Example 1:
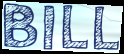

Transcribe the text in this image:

BILL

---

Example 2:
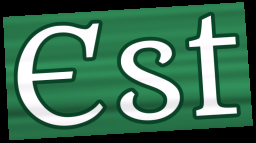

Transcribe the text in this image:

Est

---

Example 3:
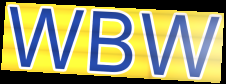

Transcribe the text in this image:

WBW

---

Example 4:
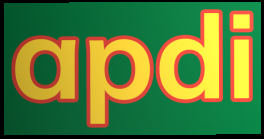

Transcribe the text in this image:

apdi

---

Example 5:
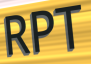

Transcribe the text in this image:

RPT